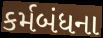
કર્મબંધના